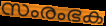
സംരംഭക